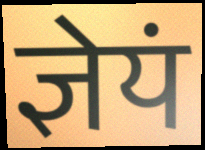
ज्ञेयं